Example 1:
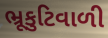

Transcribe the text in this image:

ભ્રૂકુટિવાળી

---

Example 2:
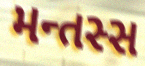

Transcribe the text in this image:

મન્તસ્સ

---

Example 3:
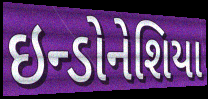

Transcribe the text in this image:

ઇન્ડોનેશિયા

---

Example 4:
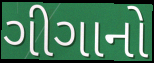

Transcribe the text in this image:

ગીગાનો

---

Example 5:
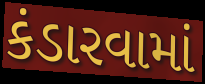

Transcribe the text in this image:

કંડારવામાં